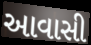
આવાસી